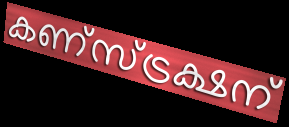
കണ്സ്ട്രക്ഷന്